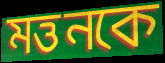
মত্তনকে